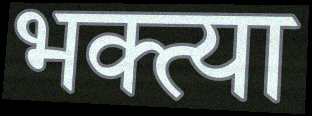
भक्त्या